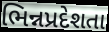
ભિન્નપ્રદેશતા